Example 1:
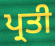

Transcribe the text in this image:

ਪ੍ਰਤੀ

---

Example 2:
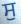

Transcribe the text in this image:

ਸੁ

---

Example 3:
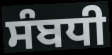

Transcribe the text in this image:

ਸੰਬਧੀ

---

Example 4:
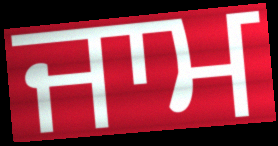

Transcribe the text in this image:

ਜਾਮ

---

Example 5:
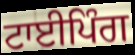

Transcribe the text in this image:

ਟਾਈਪਿੰਗ